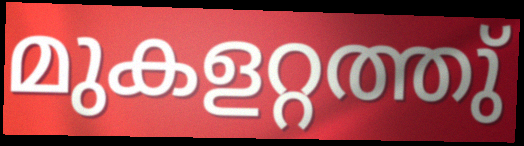
മുകളറ്റത്തു്